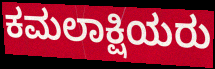
ಕಮಲಾಕ್ಷಿಯರು